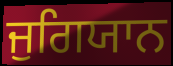
ਜੁਗਿਯਾਨ